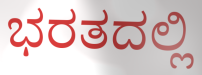
ಭರತದಲ್ಲಿ